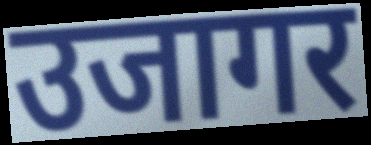
उजागर